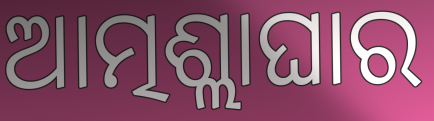
ଆତ୍ମଶ୍ଲାଘାର